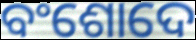
ବଂଶୋଦେ